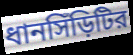
ধানসিঁড়িটির